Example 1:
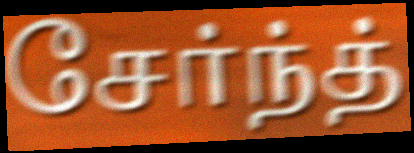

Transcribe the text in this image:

சேர்ந்த்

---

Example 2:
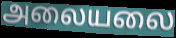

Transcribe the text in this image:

அலையலை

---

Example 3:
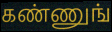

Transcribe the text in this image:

கண்ணுங்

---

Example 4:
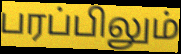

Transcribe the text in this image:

பரப்பிலும்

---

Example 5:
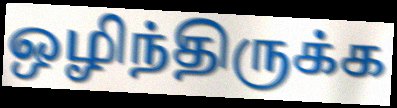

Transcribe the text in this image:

ஒழிந்திருக்க